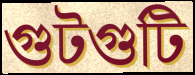
গুটগুটি